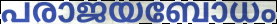
പരാജയബോധം